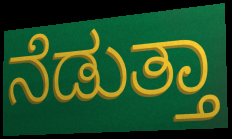
ನೆಡುತ್ತಾ